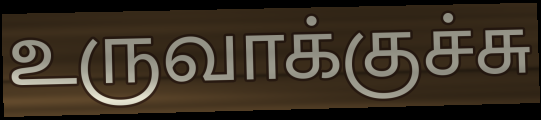
உருவாக்குச்சு